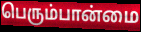
பெரும்பான்மை